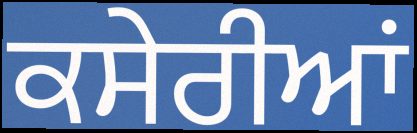
ਕਸੇਰੀਆਂ